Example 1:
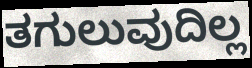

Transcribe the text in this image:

ತಗುಲುವುದಿಲ್ಲ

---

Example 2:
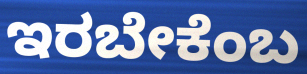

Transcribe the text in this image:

ಇರಬೇಕೆಂಬ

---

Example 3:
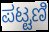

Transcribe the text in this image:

ಪಟ್ಟಣಿ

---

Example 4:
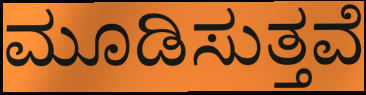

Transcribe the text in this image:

ಮೂಡಿಸುತ್ತವೆ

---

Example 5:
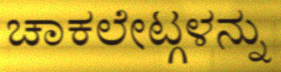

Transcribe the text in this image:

ಚಾಕಲೇಟ್ಗಳನ್ನು